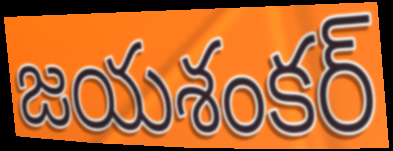
జయశంకర్